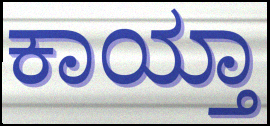
ಕಾಯ್ತಾ